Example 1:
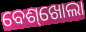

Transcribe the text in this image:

ବେଶ୍‌ଖୋଲା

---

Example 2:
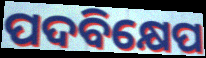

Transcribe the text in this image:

ପଦବିକ୍ଷେପ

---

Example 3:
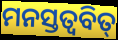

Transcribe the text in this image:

ମନସ୍ତତ୍ଵବିତ୍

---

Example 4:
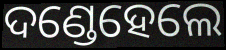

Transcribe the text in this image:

ଦଣ୍ଡେହେଲେ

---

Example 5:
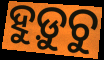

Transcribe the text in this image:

ହୁଡ଼ୁଚୁ